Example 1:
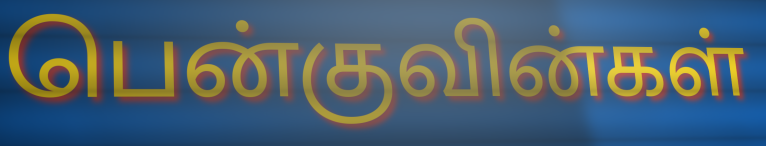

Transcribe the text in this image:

பென்குவின்கள்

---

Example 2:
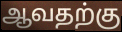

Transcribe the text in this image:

ஆவதற்கு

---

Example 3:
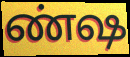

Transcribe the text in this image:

ண்ஷ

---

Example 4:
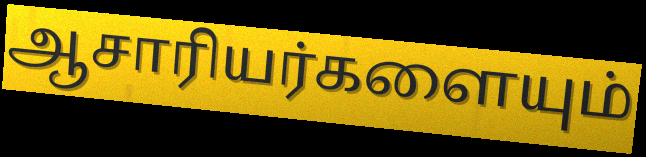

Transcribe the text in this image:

ஆசாரியர்களையும்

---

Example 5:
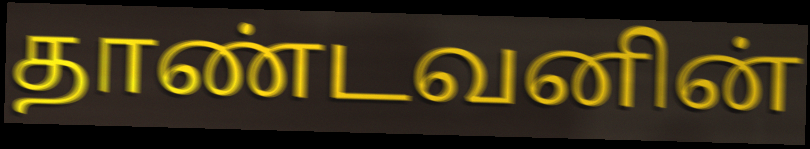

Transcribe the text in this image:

தாண்டவனின்